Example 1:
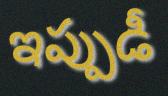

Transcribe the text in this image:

ఇప్పుడీ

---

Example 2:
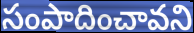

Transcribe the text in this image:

సంపాదించావని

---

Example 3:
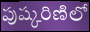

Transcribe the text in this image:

పుష్కరిణిలో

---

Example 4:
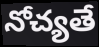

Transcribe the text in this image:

నోచ్యతే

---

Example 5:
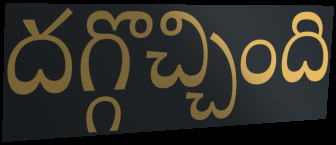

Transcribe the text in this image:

దగ్గొచ్చింది